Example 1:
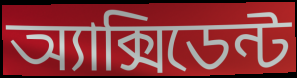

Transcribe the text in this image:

অ্যাক্সিডেন্ট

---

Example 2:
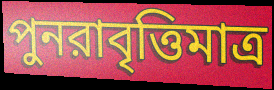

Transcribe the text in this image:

পুনরাবৃত্তিমাত্র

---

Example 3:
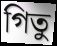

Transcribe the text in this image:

গিতু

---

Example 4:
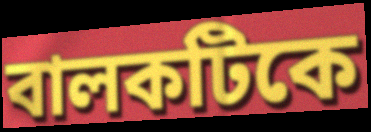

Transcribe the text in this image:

বালকটিকে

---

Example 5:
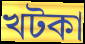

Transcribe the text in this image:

খটকা